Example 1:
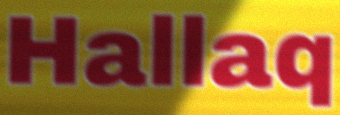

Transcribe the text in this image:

Hallaq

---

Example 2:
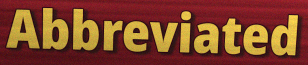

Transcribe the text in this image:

Abbreviated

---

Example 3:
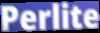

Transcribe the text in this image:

Perlite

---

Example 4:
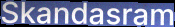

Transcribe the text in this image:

Skandasram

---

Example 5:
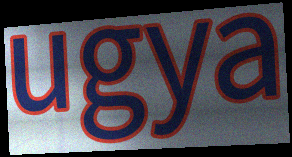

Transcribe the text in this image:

ugya